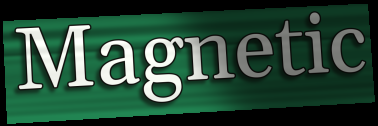
Magnetic